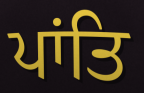
ਪਾਂਤਿ